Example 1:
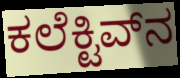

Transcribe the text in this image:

ಕಲೆಕ್ಟಿವ್‌ನ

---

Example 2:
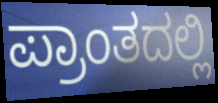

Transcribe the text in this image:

ಪ್ರಾಂತದಲ್ಲಿ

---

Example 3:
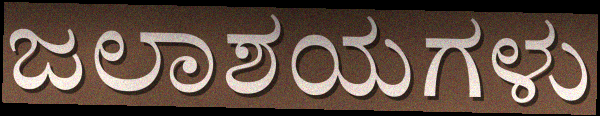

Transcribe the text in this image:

ಜಲಾಶಯಗಳು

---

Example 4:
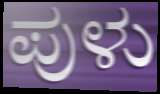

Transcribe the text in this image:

ಪುಳು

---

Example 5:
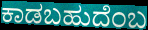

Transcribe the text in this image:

ಕಾಡಬಹುದೆಂಬ